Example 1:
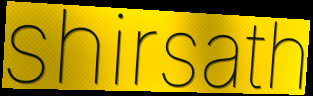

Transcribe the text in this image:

shirsath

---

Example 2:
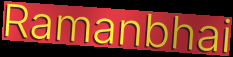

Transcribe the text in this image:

Ramanbhai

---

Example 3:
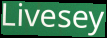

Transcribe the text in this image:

Livesey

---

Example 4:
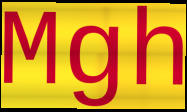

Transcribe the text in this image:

Mgh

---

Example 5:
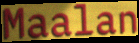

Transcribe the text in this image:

Maalan